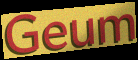
Geum